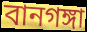
বানগঙ্গা